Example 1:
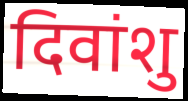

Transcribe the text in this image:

दिवांशु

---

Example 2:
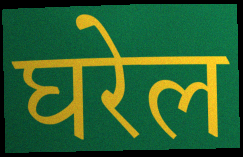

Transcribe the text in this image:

घरेल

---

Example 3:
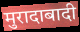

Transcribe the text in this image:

मुरादाबादी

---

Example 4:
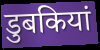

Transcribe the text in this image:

डुबकियां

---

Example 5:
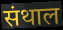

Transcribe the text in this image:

संथाल